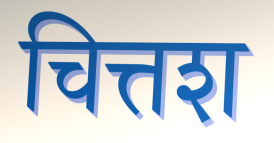
चित्तश